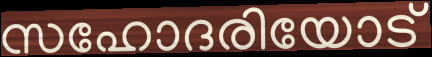
സഹോദരിയോട്